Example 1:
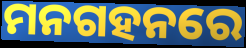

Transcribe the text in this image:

ମନଗହନରେ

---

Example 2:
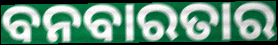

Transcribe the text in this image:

ବନବାରତାର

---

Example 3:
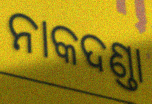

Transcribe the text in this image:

ନାକଦଣ୍ଡା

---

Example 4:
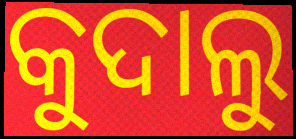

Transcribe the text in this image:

କୁଦାଲୁ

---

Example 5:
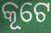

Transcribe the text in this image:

କୂଟେ